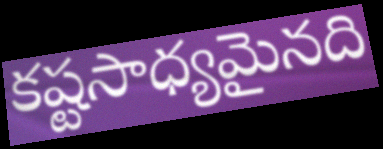
కష్టసాధ్యమైనది